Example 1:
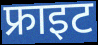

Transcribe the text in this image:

फ्राइट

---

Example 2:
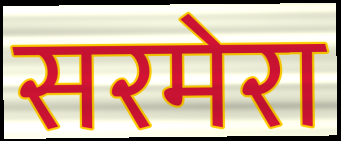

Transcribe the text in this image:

सरमेरा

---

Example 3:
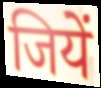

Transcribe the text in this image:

जियें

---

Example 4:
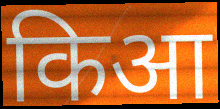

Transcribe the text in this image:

किआ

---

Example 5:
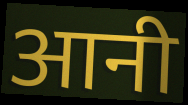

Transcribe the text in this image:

आनी